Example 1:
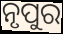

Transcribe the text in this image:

ନୃପୁର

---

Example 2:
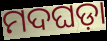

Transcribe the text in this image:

ମଦଘଡ଼ା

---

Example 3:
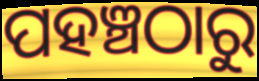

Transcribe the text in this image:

ପହଞ୍ଚଠାରୁ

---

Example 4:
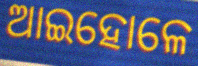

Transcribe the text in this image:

ଆଇହୋଳେ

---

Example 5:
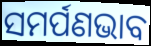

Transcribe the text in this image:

ସମର୍ପଣଭାବ